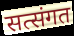
सत्संगत